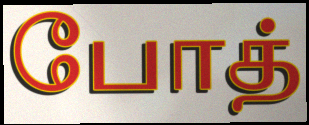
போத்